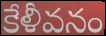
కేళీవనం